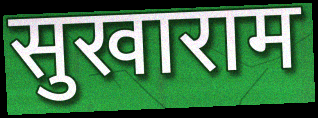
सुखाराम